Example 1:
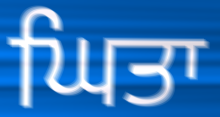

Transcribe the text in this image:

ਘਿਤਾ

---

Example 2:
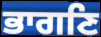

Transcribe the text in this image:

ਭਾਗਣਿ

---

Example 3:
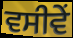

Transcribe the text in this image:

ਵਸੀਵੇਂ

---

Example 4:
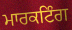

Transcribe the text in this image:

ਮਾਰਕਟਿੰਗ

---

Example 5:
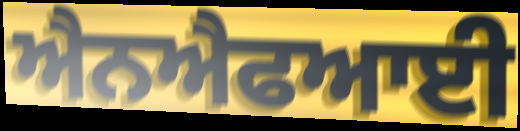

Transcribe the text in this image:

ਐਨਐਫਆਈ